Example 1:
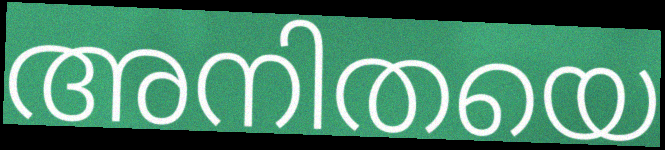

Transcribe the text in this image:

അനിതയെ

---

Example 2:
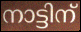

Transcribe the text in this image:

നാട്ടിന്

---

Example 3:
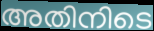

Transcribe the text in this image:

അതിനിടെ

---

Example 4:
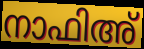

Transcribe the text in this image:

നാഫിഅ്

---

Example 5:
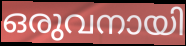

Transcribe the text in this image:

ഒരുവനായി